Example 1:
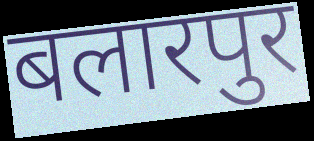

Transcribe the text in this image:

बलारपुर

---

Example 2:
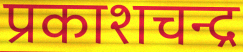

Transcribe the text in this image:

प्रकाशचन्द्र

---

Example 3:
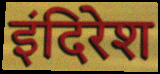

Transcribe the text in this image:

इंदिरेश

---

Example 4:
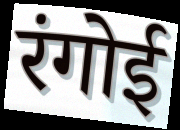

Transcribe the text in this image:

रंगोई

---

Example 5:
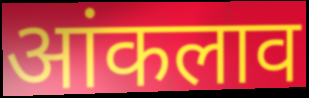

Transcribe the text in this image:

आंकलाव